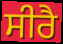
ਸੀਰੈ